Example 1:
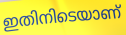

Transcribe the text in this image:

ഇതിനിടെയാണ്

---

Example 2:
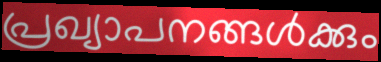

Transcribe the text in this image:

പ്രഖ്യാപനങ്ങൾക്കും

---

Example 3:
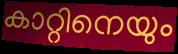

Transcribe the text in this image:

കാറ്റിനെയും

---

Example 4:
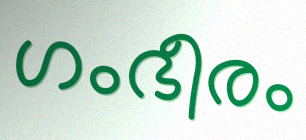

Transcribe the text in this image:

ഗംഭീരം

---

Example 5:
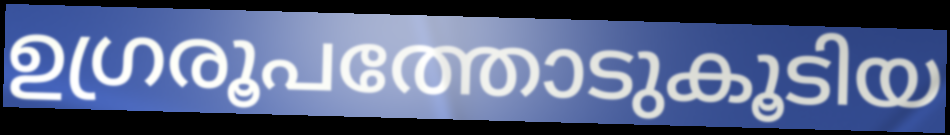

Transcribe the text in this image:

ഉഗ്രരൂപത്തോടുകൂടിയ